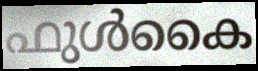
ഫുൾകൈ